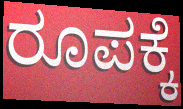
ರೂಪಕ್ಕೆ